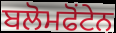
ਬਲੋਮਫੋਂਟੇਨ